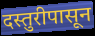
दस्तुरीपासून